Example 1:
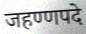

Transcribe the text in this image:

जहण्णपदे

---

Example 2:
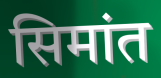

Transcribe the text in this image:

सिमांत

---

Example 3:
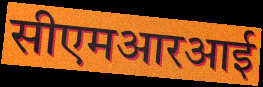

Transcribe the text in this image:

सीएमआरआई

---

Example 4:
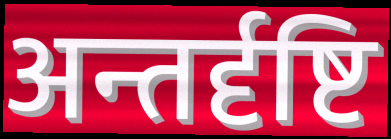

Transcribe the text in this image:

अन्तर्दृष्टि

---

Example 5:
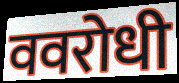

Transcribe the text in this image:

ववरोधी